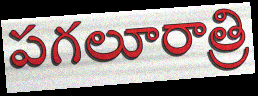
పగలూరాత్రి